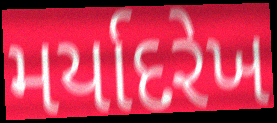
મર્યાદરેખ